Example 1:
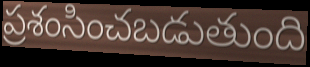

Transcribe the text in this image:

ప్రశంసించబడుతుంది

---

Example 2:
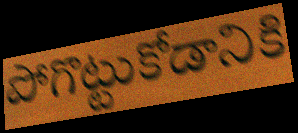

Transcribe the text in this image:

పోగొట్టుకోడానికి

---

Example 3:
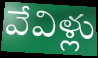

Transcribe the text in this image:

వేవిళ్లు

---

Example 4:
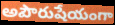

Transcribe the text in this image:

అపౌరుషేయంగా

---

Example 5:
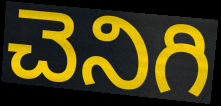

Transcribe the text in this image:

చెనిగి